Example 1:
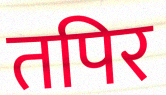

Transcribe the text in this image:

तपिर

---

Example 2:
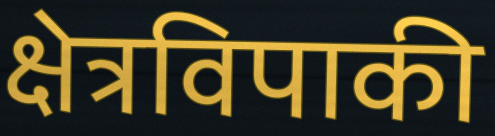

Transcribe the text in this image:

क्षेत्रविपाकी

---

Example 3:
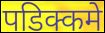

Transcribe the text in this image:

पडिक्कमे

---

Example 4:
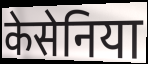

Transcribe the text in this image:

केसेनिया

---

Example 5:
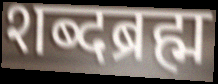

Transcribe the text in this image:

शब्दब्रह्म